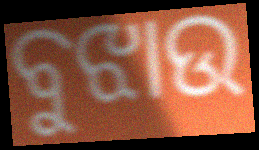
ବୁଝାଉ